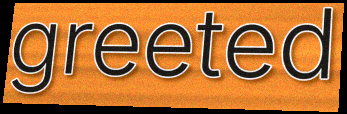
greeted